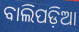
ବାଲିପଡ଼ିଆ